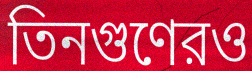
তিনগুণেরও